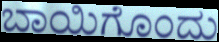
ಬಾಯಿಗೊಂದು